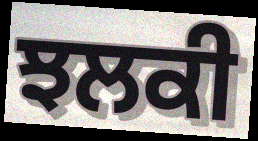
ਝਲਕੀ